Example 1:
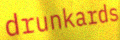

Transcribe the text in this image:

drunkards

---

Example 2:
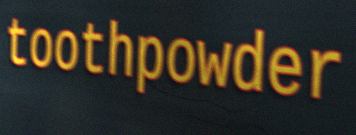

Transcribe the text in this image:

toothpowder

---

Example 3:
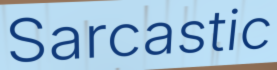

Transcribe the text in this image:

Sarcastic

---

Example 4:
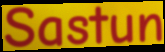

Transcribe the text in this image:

Sastun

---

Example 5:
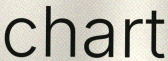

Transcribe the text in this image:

chart